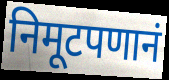
निमूटपणानं